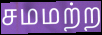
சமமற்ற